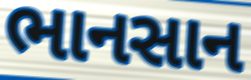
ભાનસાન